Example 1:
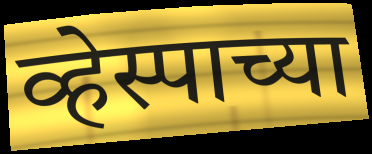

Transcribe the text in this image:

व्हेस्पाच्या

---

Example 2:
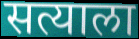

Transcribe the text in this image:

सत्याला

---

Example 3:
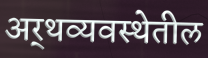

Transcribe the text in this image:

अर्थव्यवस्थेतील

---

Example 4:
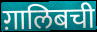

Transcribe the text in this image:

ग़ालिबची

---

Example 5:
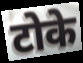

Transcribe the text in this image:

टोके